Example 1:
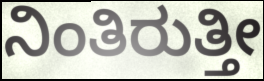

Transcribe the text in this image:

ನಿಂತಿರುತ್ತೀ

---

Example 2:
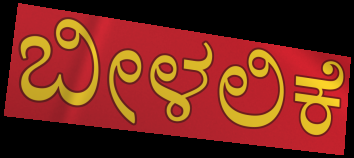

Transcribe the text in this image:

ಬೀಳಲಿಕೆ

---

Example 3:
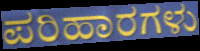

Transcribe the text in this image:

ಪರಿಹಾರಗಳು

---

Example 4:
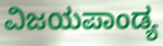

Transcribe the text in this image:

ವಿಜಯಪಾಂಡ್ಯ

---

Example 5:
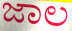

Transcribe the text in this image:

ಜಾಲ